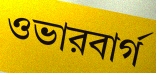
ওভারবার্গ